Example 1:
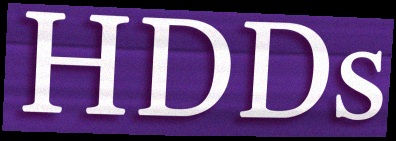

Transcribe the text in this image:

HDDs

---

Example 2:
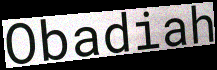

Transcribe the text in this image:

Obadiah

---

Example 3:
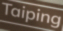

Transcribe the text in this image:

Taiping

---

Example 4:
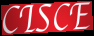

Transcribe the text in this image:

CISCE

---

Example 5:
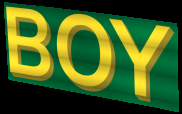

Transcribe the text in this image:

BOY